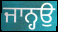
ਜਾਨ੍ਹਉ